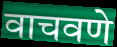
वाचवणे